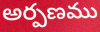
అర్పణము